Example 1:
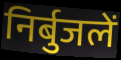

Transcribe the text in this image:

निर्बुजलें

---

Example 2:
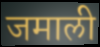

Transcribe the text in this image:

जमाली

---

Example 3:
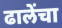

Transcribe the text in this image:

ढालेंचा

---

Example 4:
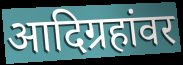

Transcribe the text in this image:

आदिग्रहांवर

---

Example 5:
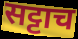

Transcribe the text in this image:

सट्टाच